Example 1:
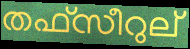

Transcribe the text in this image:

തഫ്സീറുല്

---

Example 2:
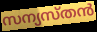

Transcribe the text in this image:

സന്യസ്തൻ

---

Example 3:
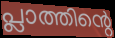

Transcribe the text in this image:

പ്ലാത്തിന്റെ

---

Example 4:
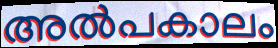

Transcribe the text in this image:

അൽപകാലം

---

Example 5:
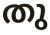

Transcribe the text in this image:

തു